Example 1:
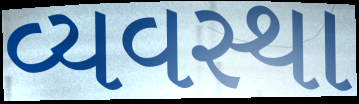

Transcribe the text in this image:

વ્યવસ્થા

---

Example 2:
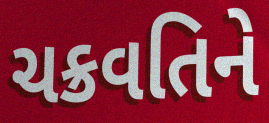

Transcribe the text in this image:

ચક્રવતિને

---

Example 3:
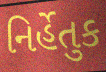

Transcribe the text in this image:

નિર્હેતુક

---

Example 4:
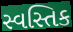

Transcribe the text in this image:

સ્વસ્તિક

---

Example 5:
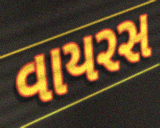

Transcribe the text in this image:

વાયરસ